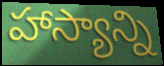
హాస్యాన్ని